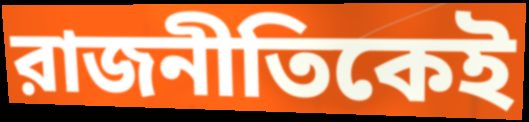
রাজনীতিকেই